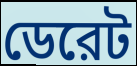
ডেরেট